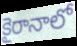
కైరానాలో